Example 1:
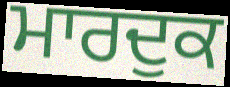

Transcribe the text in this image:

ਮਾਰਦੁਕ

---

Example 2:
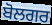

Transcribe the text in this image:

ਬੋਲਗਰ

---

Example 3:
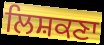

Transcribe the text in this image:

ਲਿਸ਼ਕਣਾ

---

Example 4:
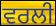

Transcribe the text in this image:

ਵਰਲੀ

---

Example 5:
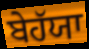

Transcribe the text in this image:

ਬੇਹੱਯਾ